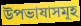
উপভাষাসমূহ